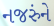
નજરુંને